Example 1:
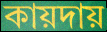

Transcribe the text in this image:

কায়দায়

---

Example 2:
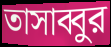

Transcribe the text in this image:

তাসাব্বুর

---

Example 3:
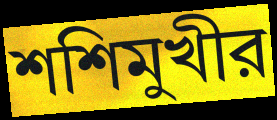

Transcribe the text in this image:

শশিমুখীর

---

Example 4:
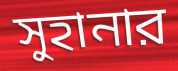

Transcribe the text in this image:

সুহানার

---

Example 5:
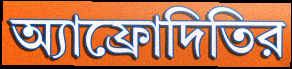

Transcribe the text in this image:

অ্যাফ্রোদিতির